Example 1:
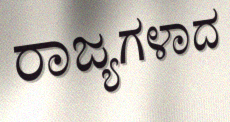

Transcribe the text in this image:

ರಾಜ್ಯಗಳಾದ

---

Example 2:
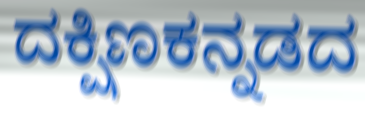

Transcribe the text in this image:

ದಕ್ಷಿಣಕನ್ನಡದ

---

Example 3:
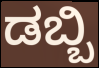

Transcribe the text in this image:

ಡಬ್ಬಿ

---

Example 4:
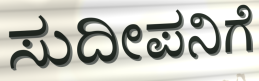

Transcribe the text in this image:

ಸುದೀಪನಿಗೆ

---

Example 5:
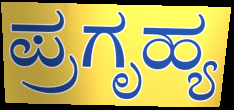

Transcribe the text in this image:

ಪ್ರಗೃಹ್ಯ